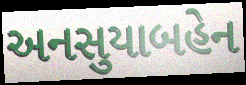
અનસુયાબહેન